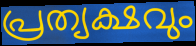
പ്രത്യക്ഷവും